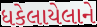
ધકેલાયેલાને